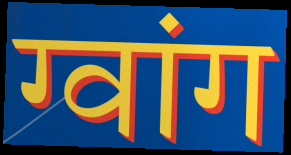
ग्वांग